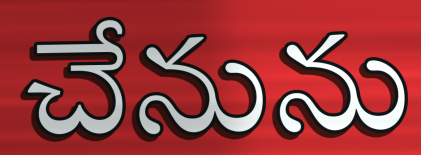
చేనును